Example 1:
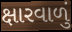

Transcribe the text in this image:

ક્ષારવાળું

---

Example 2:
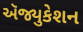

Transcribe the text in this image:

ઍજ્યુકેશન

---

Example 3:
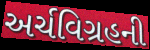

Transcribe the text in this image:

અર્ચવિગ્રહની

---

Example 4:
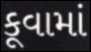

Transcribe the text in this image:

કૂવામાં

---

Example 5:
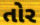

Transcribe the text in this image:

તોર